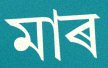
মাৰ